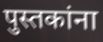
पुस्तकांना